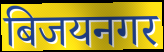
बिजयनगर